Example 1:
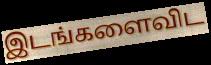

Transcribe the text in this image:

இடங்களைவிட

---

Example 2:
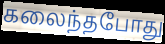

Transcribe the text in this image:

கலைந்தபோது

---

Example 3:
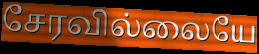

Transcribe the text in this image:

சேரவில்லையே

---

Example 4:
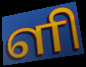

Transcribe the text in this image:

ளி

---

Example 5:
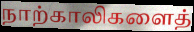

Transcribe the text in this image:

நாற்காலிகளைத்